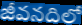
జీవనదిలో